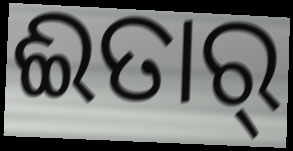
ଈତାର୍